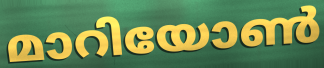
മാറിയോൺ